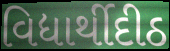
વિદ્યાર્થીદીઠ